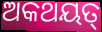
ଅକଥୟତ୍